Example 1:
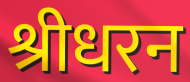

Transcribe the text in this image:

श्रीधरन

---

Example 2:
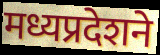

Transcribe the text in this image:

मध्यप्रदेशने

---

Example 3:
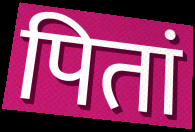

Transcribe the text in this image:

पितां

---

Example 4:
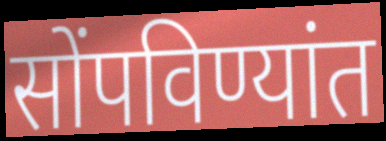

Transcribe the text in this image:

सोंपविण्यांत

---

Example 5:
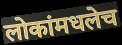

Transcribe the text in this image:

लोकांमधलेच